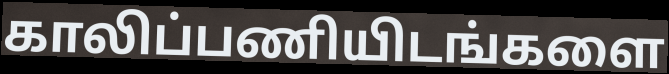
காலிப்பணியிடங்களை